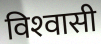
विश्‍वासी